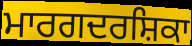
ਮਾਰਗਦਰਸ਼ਿਕਾ